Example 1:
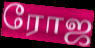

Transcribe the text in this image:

ரோஜ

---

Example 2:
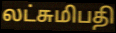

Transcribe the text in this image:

லட்சுமிபதி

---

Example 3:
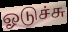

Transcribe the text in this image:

ஓடுச்சு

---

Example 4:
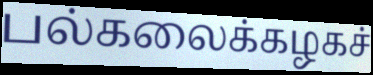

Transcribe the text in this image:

பல்கலைக்கழகச்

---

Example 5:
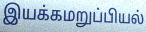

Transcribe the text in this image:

இயக்கமறுப்பியல்